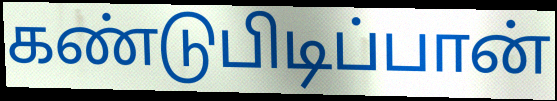
கண்டுபிடிப்பான்